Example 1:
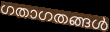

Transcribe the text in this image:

ഗതാഗതങ്ങൾ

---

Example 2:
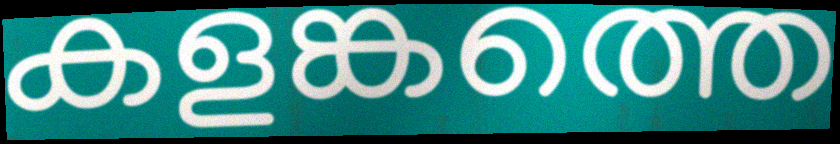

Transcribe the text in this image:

കളങ്കത്തെ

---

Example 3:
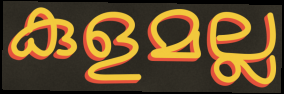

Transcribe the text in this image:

കുളമല്ല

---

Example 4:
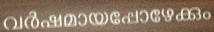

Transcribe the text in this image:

വർഷമായപ്പോഴേക്കും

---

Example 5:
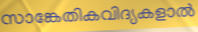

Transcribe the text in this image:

സാങ്കേതികവിദ്യകളാൽ